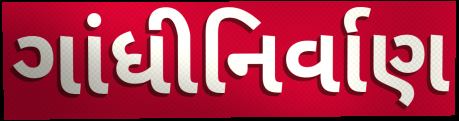
ગાંધીનિર્વાણ